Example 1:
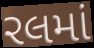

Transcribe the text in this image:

રલમાં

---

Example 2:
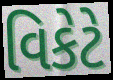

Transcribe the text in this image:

વિકેટે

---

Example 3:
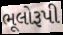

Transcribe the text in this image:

ભૂલોરૂપી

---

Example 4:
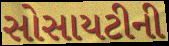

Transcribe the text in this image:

સોસાયટીની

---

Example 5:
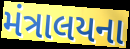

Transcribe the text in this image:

મંત્રાલયના